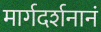
मार्गदर्शनानं